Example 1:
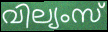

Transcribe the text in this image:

വില്യംസ്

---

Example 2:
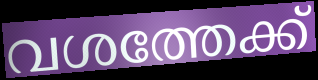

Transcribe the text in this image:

വശത്തേക്ക്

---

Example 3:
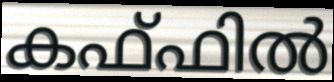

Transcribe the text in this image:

കഫ്ഫിൽ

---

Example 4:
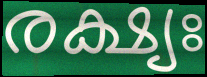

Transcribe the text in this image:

രക്ഷ്യഃ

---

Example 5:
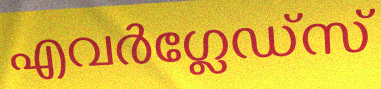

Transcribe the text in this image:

എവർഗ്ലേഡ്സ്